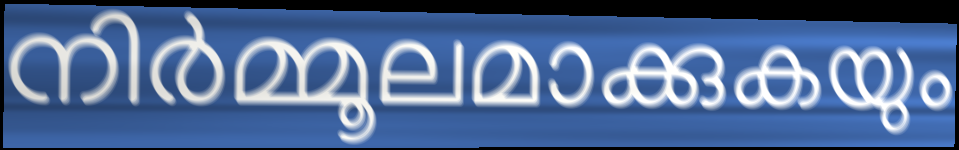
നിർമ്മൂലമാക്കുകയും